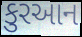
કુરઆન